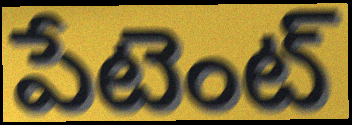
పేటెంట్